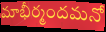
మాభీర్మందమనో